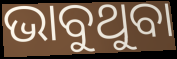
ଭାବୁଥୁବା